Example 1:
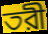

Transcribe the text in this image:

তরী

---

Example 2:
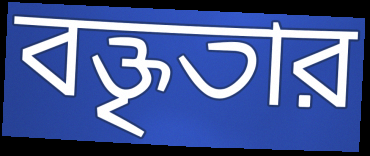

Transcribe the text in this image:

বক্তৃতার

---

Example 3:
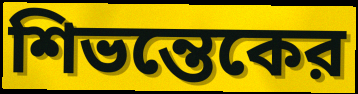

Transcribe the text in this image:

শিভন্তেকের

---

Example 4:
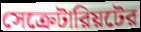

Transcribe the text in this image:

সেক্রেটারিয়টের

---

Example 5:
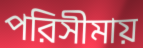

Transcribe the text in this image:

পরিসীমায়